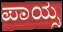
ಪಾಯ್ಸ